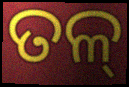
ତଳ୍